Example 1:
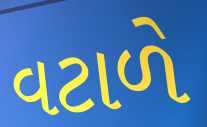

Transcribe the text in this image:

વટાળે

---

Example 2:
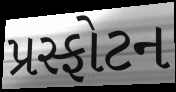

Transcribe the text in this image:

પ્રસ્ફોટન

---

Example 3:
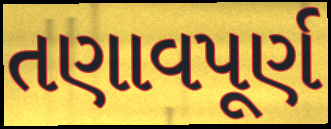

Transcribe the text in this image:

તણાવપૂર્ણ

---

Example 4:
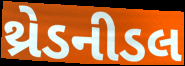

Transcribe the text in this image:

થ્રેડનીડલ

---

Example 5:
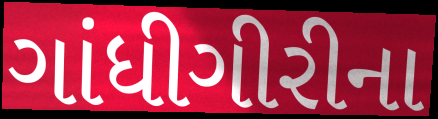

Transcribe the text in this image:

ગાંધીગીરીના